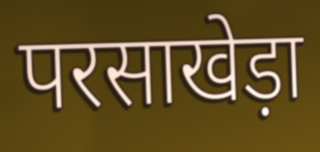
परसाखेड़ा